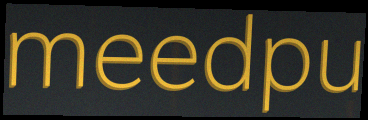
meedpu